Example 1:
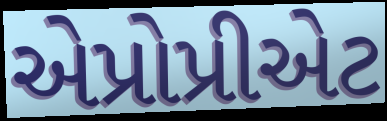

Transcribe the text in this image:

એપ્રોપ્રીએટ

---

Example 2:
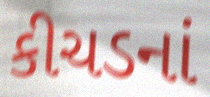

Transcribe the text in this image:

કીચડનાં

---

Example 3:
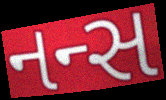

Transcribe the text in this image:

નન્સ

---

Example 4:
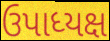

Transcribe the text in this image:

ઉપાધ્યક્ષ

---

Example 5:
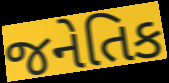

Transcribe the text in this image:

જનેતિક